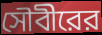
সৌবীরের